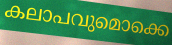
കലാപവുമൊക്കെ